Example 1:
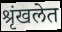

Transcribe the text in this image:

श्रृंखलेत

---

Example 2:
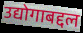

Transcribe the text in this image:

उद्योगाबद्दल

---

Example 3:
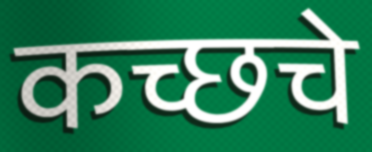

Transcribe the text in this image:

कच्छचे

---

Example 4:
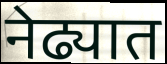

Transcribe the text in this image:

नेढ्यात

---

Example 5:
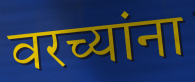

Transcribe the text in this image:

वरच्यांना